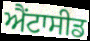
ਐਂਟਾਸੀਡ